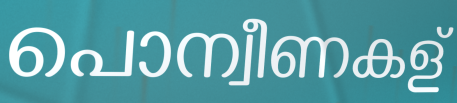
പൊന്വീണകള്